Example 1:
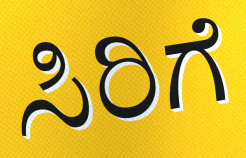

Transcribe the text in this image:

ಸಿರಿಗೆ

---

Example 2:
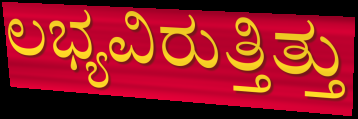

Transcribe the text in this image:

ಲಭ್ಯವಿರುತ್ತಿತ್ತು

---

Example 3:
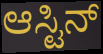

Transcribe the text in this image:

ಆಸ್ಟಿನ್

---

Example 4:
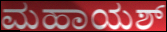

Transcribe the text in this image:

ಮಹಾಯಶ್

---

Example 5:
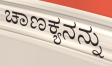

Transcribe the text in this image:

ಚಾಣಕ್ಯನನ್ನು